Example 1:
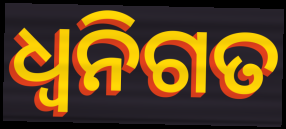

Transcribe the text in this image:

ଧ୍ୱନିଗତ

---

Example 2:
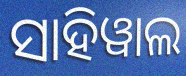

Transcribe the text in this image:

ସାହିୱାଲ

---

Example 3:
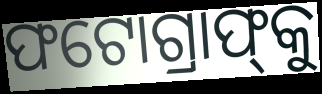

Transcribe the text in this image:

ଫଟୋଗ୍ରାଫ୍‌କୁ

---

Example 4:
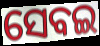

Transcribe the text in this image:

ସେବଇ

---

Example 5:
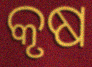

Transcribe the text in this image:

କୃଷ